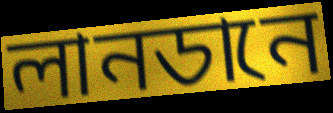
লানডানে